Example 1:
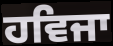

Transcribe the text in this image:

ਹਵਿਜਾ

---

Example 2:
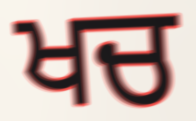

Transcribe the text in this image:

ਖਚ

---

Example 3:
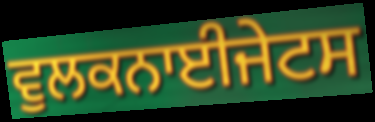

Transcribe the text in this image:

ਵੁਲਕਨਾਈਜੇਟਸ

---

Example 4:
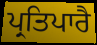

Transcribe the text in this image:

ਪ੍ਰਤਿਪਾਰੈ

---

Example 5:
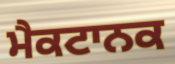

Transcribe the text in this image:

ਮੈਕਟਾਨਕ